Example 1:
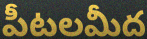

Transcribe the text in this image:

పీటలమీద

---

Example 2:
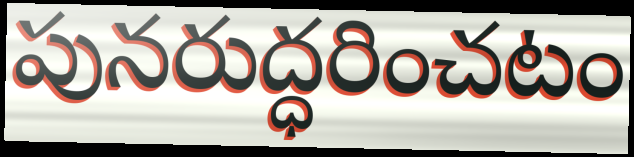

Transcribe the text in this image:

పునరుద్ధరించటం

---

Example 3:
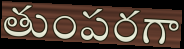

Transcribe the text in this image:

తుంపరగా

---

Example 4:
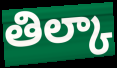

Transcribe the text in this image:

తిల్కా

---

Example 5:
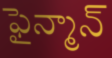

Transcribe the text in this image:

ఫైన్మాన్